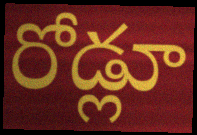
రోడ్లూ